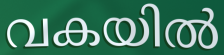
വകയിൽ